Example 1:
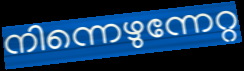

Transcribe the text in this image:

നിന്നെഴുന്നേറ്റ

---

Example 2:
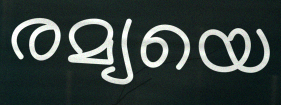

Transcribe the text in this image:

രമ്യയെ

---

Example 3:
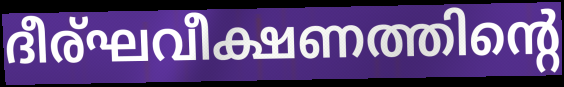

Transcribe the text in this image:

ദീര്ഘവീക്ഷണത്തിന്റെ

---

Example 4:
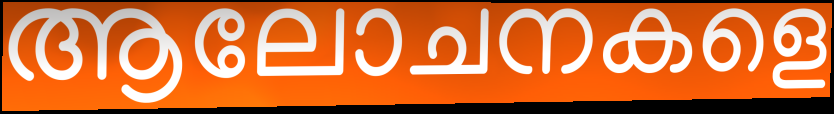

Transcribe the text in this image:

ആലോചനകളെ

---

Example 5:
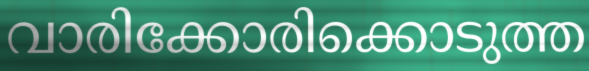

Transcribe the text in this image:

വാരിക്കോരിക്കൊടുത്ത